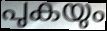
പുകയും